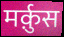
मर्क़ुस